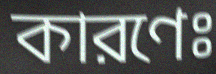
কারণেঃ